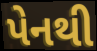
પેનથી